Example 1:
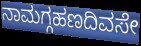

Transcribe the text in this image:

ನಾಮಗ್ಗಹಣದಿವಸೇ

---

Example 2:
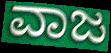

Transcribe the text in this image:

ವಾಜ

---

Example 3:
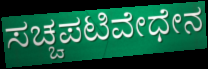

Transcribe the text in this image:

ಸಚ್ಚಪಟಿವೇಧೇನ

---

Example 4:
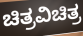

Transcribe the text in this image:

ಚಿತ್ರವಿಚಿತ್ರ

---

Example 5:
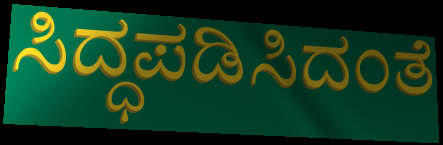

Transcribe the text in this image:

ಸಿದ್ಧಪಡಿಸಿದಂತೆ